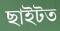
ছাইটত